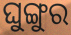
ଘୁଙ୍ଗୁର